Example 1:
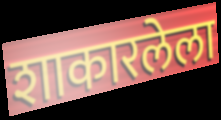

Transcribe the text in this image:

शाकारलेला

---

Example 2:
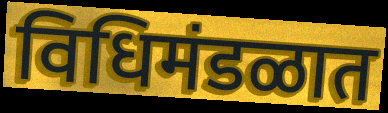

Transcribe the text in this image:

विधिमंडळात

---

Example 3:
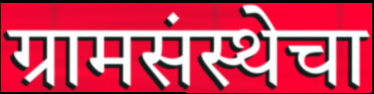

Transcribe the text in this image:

ग्रामसंस्थेचा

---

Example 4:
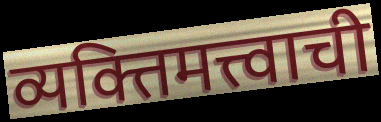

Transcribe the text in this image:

व्यक्तिमत्त्वाची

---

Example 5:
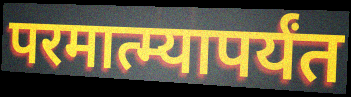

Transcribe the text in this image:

परमात्म्यापर्यंत